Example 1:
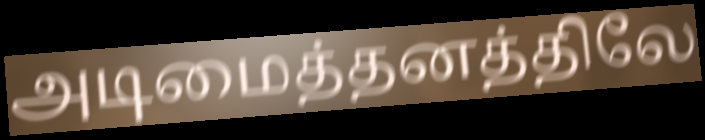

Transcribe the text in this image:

அடிமைத்தனத்திலே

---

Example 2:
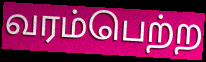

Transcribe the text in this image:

வரம்பெற்ற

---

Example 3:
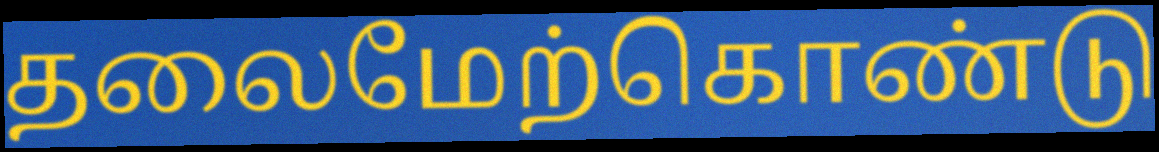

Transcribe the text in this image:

தலைமேற்கொண்டு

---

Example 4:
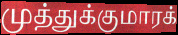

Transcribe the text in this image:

முத்துக்குமாரக்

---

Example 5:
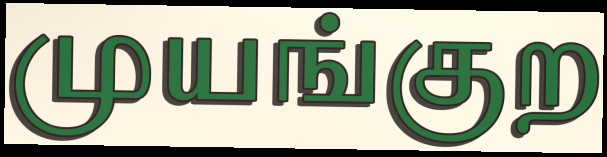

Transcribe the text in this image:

முயங்குற